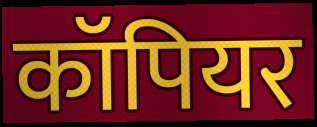
कॉपियर